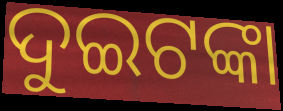
ଦୁଇଟଙ୍କା